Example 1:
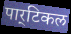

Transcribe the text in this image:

पार्टिकल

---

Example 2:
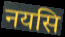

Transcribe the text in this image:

नयसि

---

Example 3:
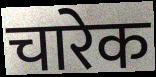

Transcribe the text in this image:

चारेक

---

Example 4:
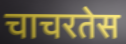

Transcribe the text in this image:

चाचरतेस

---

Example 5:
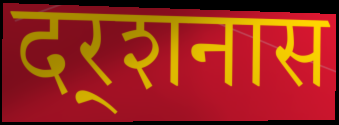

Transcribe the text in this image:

दर्शनास